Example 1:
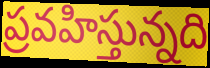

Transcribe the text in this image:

ప్రవహిస్తున్నది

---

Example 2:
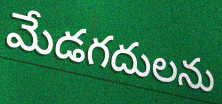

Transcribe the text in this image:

మేడగదులను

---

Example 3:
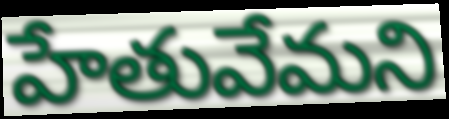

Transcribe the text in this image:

హేతువేమని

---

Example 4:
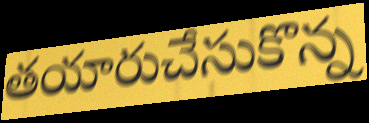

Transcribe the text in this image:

తయారుచేసుకొన్న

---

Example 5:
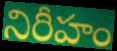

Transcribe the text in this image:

నిరీహం